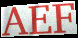
AEF